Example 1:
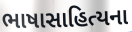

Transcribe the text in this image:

ભાષાસાહિત્યના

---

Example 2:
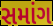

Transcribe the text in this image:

સમાંગ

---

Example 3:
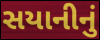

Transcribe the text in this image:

સયાનીનું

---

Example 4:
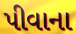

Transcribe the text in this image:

પીવાના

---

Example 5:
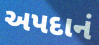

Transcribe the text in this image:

અપદાનં